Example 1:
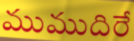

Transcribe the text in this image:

ముముదిరే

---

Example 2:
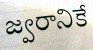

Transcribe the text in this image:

జ్వరానికే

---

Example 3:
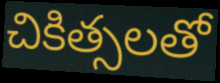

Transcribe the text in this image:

చికిత్సలతో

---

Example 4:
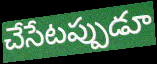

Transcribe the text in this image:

చేసేటప్పుడూ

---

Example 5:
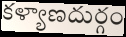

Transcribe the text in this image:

కళ్యాణదుర్గం